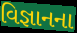
વિજ્ઞાનના